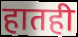
हातही